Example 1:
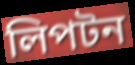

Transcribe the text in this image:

লিপটন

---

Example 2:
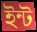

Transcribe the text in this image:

ইন্ট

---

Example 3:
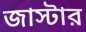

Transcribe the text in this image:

জাস্টার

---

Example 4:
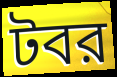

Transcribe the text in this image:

টবর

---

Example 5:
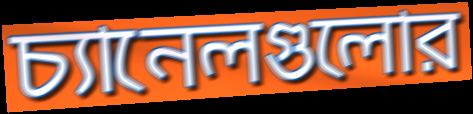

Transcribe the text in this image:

চ্যানেলগুলোর